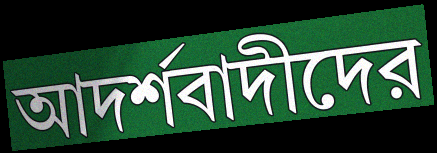
আদর্শবাদীদের